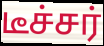
டீச்சர்